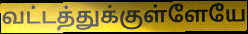
வட்டத்துக்குள்ளேயே